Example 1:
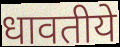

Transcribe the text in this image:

धावतीये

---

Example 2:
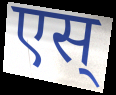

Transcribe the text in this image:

एस्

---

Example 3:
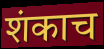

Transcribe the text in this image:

शंकाच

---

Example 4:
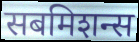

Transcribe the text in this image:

सबमिशन्स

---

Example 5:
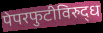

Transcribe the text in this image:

पेपरफुटीविरुद्ध